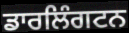
ਡਾਰਲਿੰਗਟਨ